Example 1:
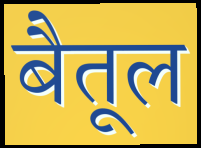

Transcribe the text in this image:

बैतूल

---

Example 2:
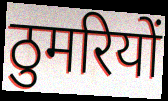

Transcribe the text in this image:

ठुमरियों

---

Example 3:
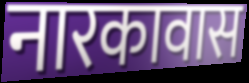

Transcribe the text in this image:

नारकावास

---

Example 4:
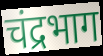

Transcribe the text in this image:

चंद्रभाग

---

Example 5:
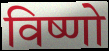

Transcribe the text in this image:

विष्णो